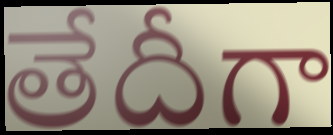
తేదీగా